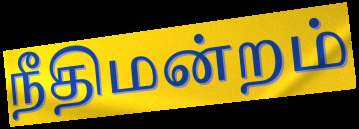
நீதிமன்றம்